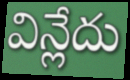
విన్లేదు